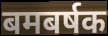
बमबर्षक